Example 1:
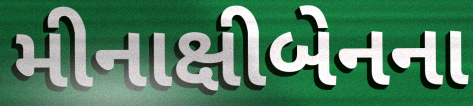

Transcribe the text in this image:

મીનાક્ષીબેનના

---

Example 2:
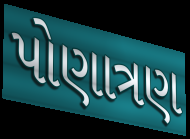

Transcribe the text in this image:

પોણાત્રણ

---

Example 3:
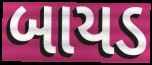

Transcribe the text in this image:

બાયડ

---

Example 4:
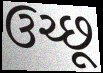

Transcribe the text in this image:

ઉચ્છૂ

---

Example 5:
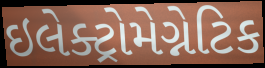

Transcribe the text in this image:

ઇલેક્ટ્રોમેગ્નેટિક